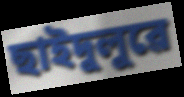
ছাইদুলুৱে